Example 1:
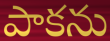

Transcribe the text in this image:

పాకను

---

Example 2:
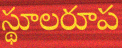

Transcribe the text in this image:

స్థూలరూప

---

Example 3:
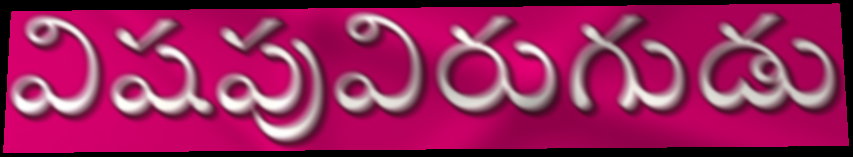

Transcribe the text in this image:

విషపువిరుగుడు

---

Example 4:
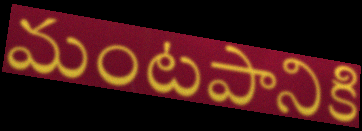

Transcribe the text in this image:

మంటపానికి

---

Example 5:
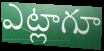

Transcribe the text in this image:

ఎట్లాగూ